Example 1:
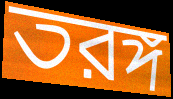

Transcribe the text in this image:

তরঙ্গ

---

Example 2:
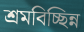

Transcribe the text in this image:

শ্রমবিচ্ছিন্ন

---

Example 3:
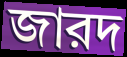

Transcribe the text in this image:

জারদ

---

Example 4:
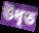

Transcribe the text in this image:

উধৃত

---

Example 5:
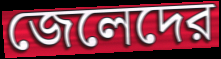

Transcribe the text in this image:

জেলেদের